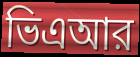
ভিএআর